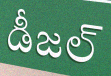
డీజల్